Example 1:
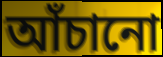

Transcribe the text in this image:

আঁচানো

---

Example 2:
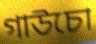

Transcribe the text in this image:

গাউচো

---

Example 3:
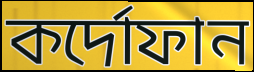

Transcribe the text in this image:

কর্দোফান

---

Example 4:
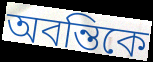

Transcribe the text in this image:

অবন্তিকে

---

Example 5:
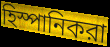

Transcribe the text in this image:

হিস্পানিকরা